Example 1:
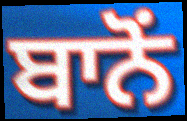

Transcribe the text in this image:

ਬਾਨੋਂ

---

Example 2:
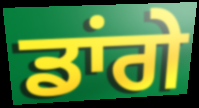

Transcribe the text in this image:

ਡਾਂਗੇ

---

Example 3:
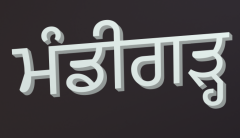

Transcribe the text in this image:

ਮੰਡੀਗੜ੍ਹ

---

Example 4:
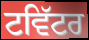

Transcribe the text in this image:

ਟਵਿੱਟਰ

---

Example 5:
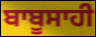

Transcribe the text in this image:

ਬਾਬੂਸਾਹੀ